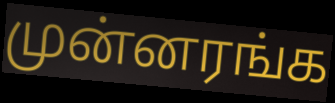
முன்னரங்க